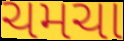
ચમચા